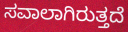
ಸವಾಲಾಗಿರುತ್ತದೆ